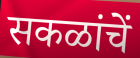
सकळांचें